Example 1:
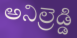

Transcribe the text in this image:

అనిల్రెడ్డి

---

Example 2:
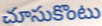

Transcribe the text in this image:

చూసుకొంటు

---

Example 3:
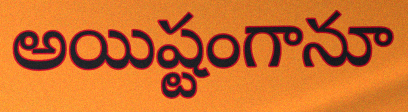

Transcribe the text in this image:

అయిష్టంగానూ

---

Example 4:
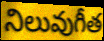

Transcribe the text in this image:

నిలువుగీత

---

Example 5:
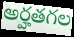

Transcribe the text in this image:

అర్హతగల